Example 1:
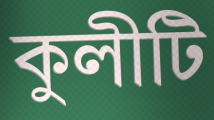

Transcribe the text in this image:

কুলীটি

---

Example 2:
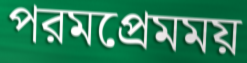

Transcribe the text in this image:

পরমপ্রেমময়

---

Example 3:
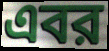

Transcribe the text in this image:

এবর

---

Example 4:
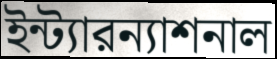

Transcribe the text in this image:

ইন্ট্যারন্যাশনাল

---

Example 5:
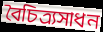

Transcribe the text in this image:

বৈচিত্র্যসাধন